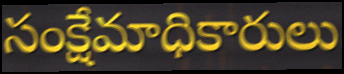
సంక్షేమాధికారులు